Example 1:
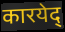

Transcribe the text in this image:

कारयेद्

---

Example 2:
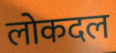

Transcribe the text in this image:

लोकदल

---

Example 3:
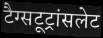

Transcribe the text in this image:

टैग्सटूट्रांसलेट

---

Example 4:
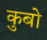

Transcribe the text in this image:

कुबो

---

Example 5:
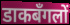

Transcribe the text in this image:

डाकबँगलों